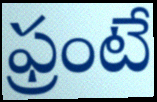
ఫ్రంటే